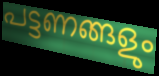
പട്ടണങ്ങളും